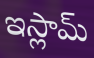
ఇస్లామ్